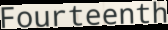
Fourteenth